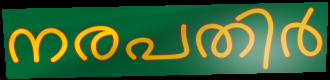
നരപതിർ